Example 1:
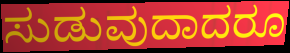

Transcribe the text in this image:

ಸುಡುವುದಾದರೂ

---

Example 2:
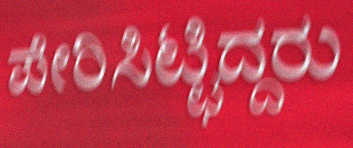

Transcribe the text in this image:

ಪೇರಿಸಿಟ್ಟಿದ್ದರು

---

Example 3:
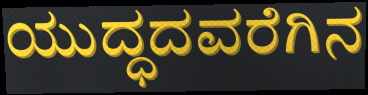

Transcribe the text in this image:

ಯುದ್ಧದವರೆಗಿನ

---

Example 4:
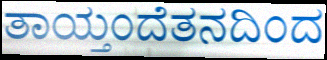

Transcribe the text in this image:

ತಾಯ್ತಂದೆತನದಿಂದ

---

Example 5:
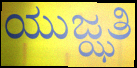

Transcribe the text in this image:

ಯುಜ್ಝತಿ